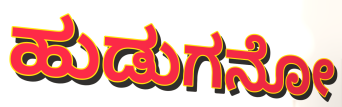
ಹುಡುಗನೋ